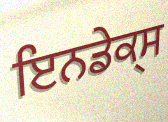
ਇਨਡੇਕ੍ਸ